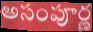
అసంపూర్ణ